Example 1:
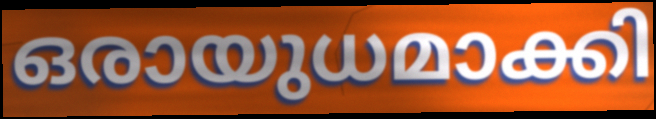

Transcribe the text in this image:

ഒരായുധമാക്കി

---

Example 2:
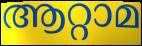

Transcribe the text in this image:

ആറ്റാമ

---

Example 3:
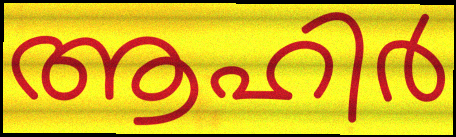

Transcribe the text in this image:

ആഹിർ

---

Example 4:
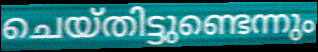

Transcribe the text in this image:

ചെയ്തിട്ടുണ്ടെന്നും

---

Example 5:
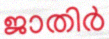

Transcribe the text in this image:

ജാതിർ